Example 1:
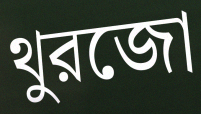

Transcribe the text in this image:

থুরজো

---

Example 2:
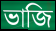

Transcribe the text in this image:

ভাজি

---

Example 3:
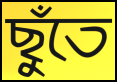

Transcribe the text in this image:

ছুঁতে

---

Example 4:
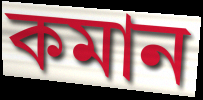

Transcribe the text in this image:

কমান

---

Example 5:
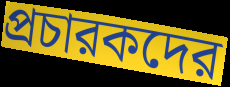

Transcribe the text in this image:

প্রচারকদের